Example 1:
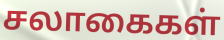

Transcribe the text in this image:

சலாகைகள்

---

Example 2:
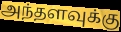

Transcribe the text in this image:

அந்தளவுக்கு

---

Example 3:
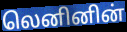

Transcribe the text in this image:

லெனினின்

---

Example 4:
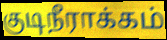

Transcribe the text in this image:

குடிநீராக்கம்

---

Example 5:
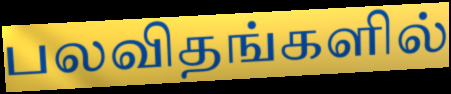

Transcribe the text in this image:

பலவிதங்களில்